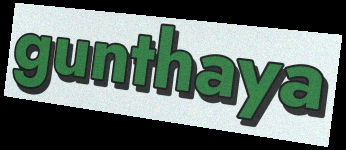
gunthaya